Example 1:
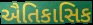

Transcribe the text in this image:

ઐતિકાસિક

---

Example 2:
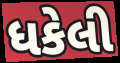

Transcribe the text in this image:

ધકેલી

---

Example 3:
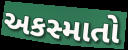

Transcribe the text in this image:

અકસ્માતો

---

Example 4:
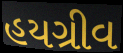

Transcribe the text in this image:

હયગ્રીવ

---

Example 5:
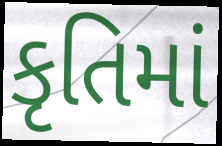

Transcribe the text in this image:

કૃતિમાં